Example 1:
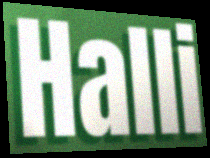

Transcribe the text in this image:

Halli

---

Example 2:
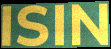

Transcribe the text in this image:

ISIN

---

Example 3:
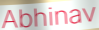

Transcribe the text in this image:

Abhinav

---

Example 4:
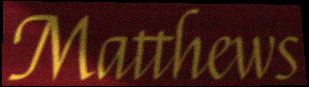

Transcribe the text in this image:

Matthews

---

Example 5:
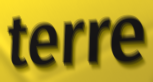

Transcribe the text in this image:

terre